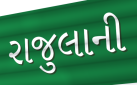
રાજુલાની